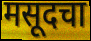
मसूदचा